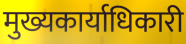
मुख्यकार्याधिकारी